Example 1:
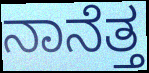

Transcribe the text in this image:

ನಾನೆತ್ತ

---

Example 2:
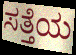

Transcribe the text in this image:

ಸತ್ತೆಯ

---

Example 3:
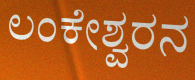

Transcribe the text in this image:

ಲಂಕೇಶ್ವರನ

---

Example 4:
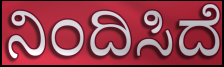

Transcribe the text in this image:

ನಿಂದಿಸಿದೆ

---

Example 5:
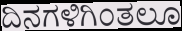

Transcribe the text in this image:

ದಿನಗಳಿಗಿಂತಲೂ